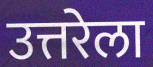
उत्तरेला